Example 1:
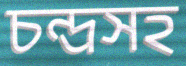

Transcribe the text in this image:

চন্দ্রসহ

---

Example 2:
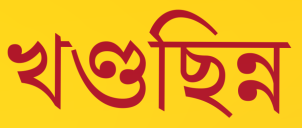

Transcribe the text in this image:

খণ্ডছিন্ন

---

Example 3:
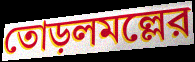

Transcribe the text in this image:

তোড়লমল্লের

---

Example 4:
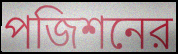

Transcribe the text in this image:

পজিশনের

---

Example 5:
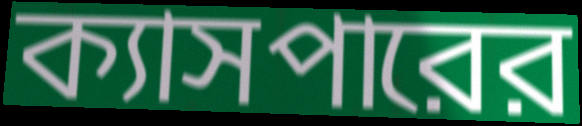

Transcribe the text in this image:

ক্যাসপারের